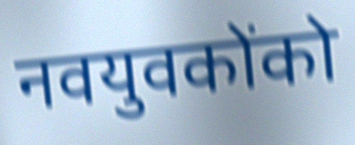
नवयुवकोंको